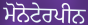
ਮੋਨੋਟੇਰਪੀਨ